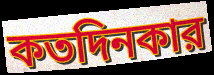
কতদিনকার